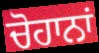
ਚੋਹਾਨਾਂ